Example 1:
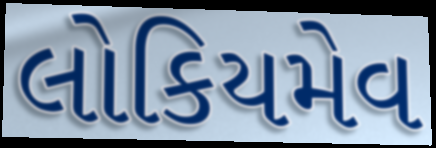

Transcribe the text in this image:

લોકિયમેવ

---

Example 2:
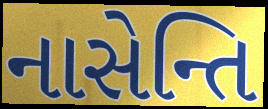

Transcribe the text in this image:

નાસેન્તિ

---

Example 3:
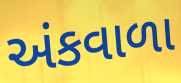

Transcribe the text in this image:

અંકવાળા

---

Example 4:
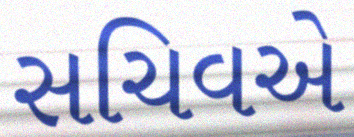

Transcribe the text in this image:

સચિવએ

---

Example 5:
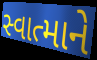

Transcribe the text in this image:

સ્વાત્માને